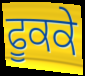
ਫੂਕਕੇ